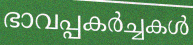
ഭാവപ്പകർച്ചകൾ